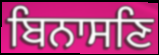
ਬਿਨਾਸਣਿ